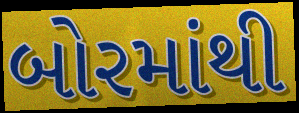
બોરમાંથી